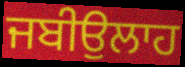
ਜਬੀਉਲਾਹ